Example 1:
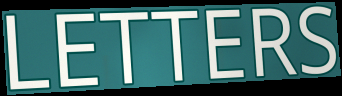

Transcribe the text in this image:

LETTERS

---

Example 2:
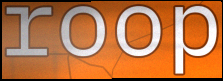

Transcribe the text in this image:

roop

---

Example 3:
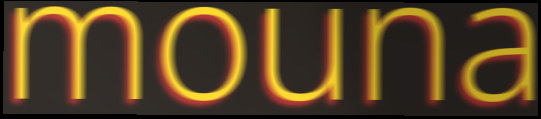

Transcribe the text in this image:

mouna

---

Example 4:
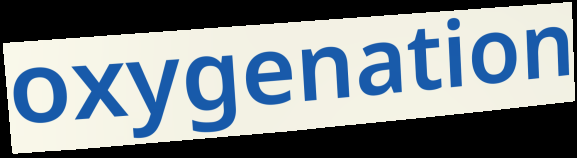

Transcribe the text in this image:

oxygenation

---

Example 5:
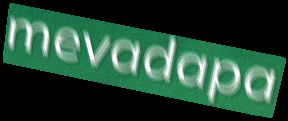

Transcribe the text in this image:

mevadapa